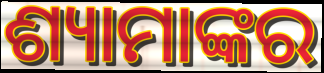
ଶ୍ୟାମାଙ୍କର